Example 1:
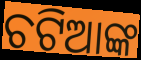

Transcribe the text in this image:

ଚଟିଆଙ୍କ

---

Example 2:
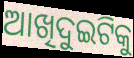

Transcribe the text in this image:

ଆଖିଦୁଇଟିକୁ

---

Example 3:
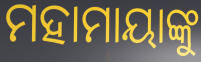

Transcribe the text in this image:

ମହାମାୟାଙ୍କୁ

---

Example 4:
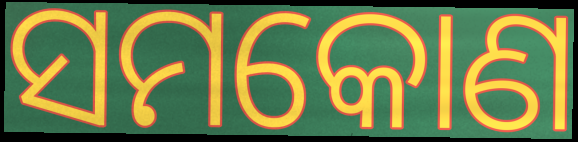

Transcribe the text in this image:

ସମକୋଣ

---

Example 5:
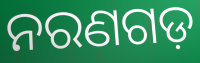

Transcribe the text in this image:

ନରଣଗଡ଼